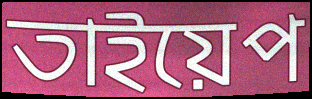
তাইয়েপ